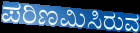
ಪರಿಣಮಿಸಿರುವ